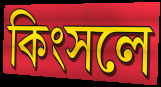
কিংসলে